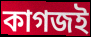
কাগজই